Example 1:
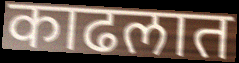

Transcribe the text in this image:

काढलात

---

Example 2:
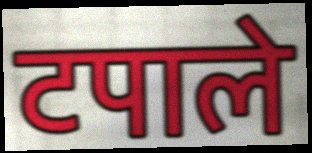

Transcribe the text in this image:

टपाले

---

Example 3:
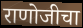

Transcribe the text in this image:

राणोजीचा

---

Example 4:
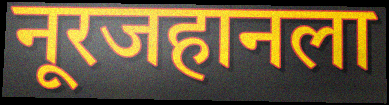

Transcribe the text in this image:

नूरजहानला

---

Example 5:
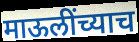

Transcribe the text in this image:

माऊलींच्याच